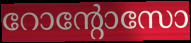
റോന്റോസോ